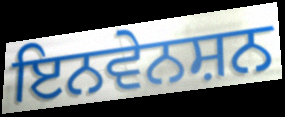
ਇਨਵੇਨਸ਼ਨ